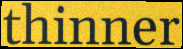
thinner